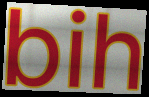
bih